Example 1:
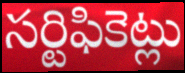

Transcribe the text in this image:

సర్టిఫికెట్లు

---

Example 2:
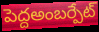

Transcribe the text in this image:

పెద్దఅంబర్పేట్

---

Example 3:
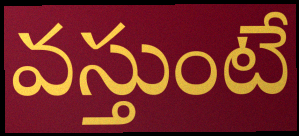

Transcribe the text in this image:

వస్తుంటే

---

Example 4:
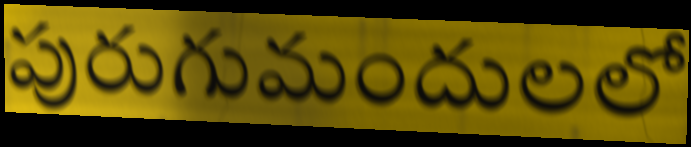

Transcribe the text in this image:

పురుగుమందులలో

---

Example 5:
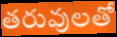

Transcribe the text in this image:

తరువులతో